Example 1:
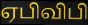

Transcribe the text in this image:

ஏபிவிபி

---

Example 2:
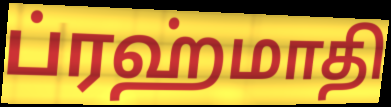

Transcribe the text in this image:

ப்ரஹ்மாதி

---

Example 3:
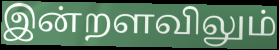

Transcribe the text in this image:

இன்றளவிலும்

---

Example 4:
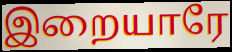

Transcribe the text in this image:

இறையாரே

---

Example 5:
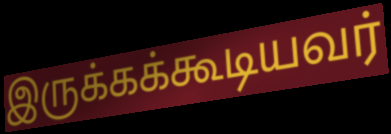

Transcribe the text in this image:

இருக்கக்கூடியவர்